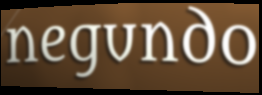
negundo